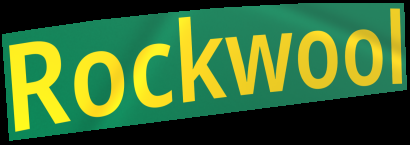
Rockwool